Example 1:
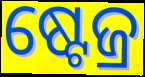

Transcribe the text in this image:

ଷ୍ଟେଜ୍ର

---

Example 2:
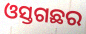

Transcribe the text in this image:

ଓସ୍ତଗଛର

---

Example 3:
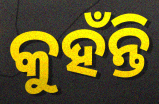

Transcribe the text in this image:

କୁହଁନ୍ତି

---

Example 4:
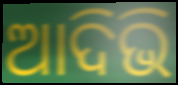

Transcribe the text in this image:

ଆଦିଭି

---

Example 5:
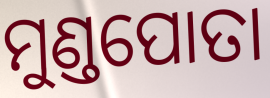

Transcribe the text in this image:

ମୁଣ୍ଡପୋତା